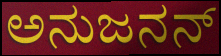
ಅನುಜನನ್